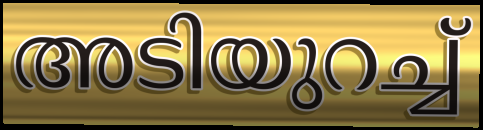
അടിയുറച്ച്